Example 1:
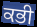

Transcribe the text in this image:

ਕਭੀ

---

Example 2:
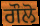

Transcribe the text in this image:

ਗੌਲੋ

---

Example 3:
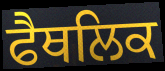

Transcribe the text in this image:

ਫੈਥਲਿਕ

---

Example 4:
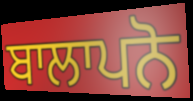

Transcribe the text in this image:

ਬਾਲਾਪਨੋ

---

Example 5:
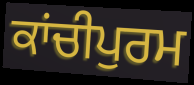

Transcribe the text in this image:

ਕਾਂਚੀਪੁਰਮ